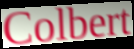
Colbert